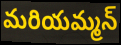
మరియమ్మన్